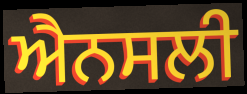
ਐਨਸਲੀ